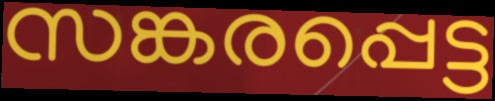
സങ്കരപ്പെട്ട